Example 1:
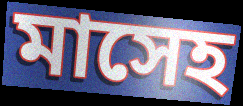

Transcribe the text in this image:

মাসেহ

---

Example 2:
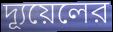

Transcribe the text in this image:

দ্যূয়েলের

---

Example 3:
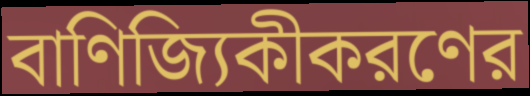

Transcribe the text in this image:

বাণিজ্যিকীকরণের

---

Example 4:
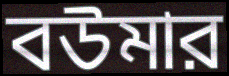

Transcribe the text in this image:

বউমার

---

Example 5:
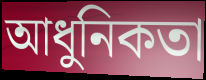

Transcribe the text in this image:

আধুনিকতা